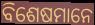
ବିଶେଷମାନେ